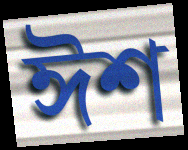
ঈশ